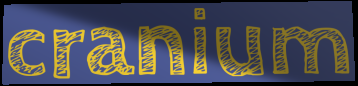
cranium